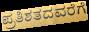
ಪ್ರತಿಶತದವರೆಗೆ